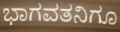
ಭಾಗವತನಿಗೂ